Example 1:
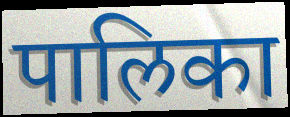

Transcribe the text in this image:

पालिका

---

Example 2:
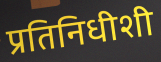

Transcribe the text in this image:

प्रतिनिधीशी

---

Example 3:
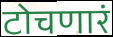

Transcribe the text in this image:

टोचणारं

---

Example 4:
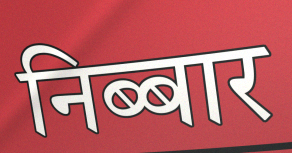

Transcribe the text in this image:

निब्बार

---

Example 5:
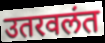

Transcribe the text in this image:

उतरवलंत